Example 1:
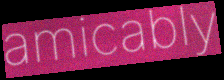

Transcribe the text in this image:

amicably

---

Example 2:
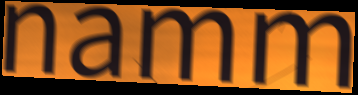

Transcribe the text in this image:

namm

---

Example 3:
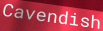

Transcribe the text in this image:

Cavendish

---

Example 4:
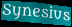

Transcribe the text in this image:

Synesius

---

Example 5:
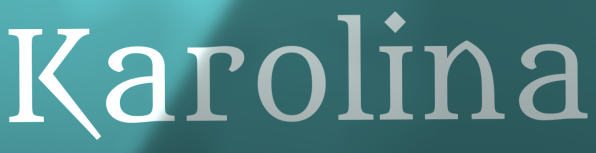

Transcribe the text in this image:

Karolina